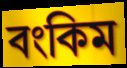
বংকিম